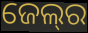
ଜେଲ୍‍ର